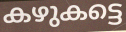
കഴുകട്ടെ